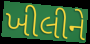
ખીલીને